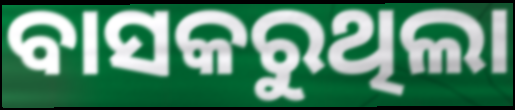
ବାସକରୁଥିଲା